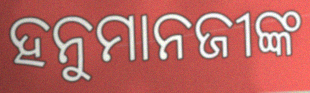
ହନୁମାନଜୀଙ୍କ